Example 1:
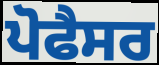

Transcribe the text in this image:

ਪੋਫੈਸਰ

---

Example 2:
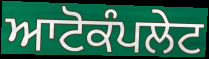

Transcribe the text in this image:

ਆਟੋਕੰਪਲੇਟ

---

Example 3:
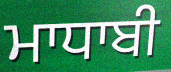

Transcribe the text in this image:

ਮਾਧਾਬੀ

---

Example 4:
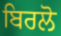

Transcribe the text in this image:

ਬਿਰਲੋ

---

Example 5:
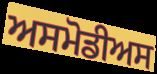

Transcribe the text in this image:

ਅਸਮੋਡੀਅਸ